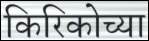
किरिकोच्या